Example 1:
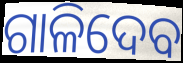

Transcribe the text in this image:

ଗାଳିଦେବ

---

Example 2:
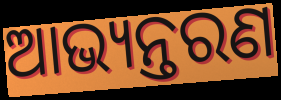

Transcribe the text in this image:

ଆଭ୍ୟନ୍ତରଣ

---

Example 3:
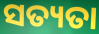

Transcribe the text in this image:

ସତ୍ୟତା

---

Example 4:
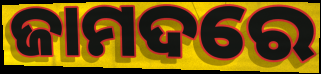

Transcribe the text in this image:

ଜାମଦରେ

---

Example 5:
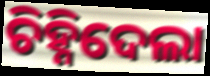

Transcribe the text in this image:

ଚିହ୍ନିଦେଲା